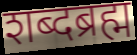
शब्दब्रह्म